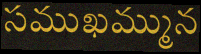
సముఖమ్మున